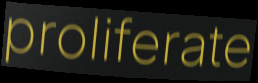
proliferate